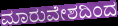
ಮಾರುವೇಶದಿಂದ